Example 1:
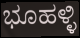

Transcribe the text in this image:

ಭೂಹಳ್ಳಿ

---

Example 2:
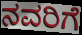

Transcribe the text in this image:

ನವರಿಗೆ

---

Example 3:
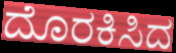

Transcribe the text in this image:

ದೊರಕಿಸಿದ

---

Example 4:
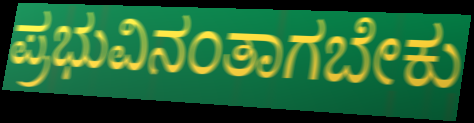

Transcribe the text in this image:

ಪ್ರಭುವಿನಂತಾಗಬೇಕು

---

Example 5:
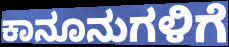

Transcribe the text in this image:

ಕಾನೂನುಗಳಿಗೆ